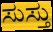
ಸುಸ್ತು